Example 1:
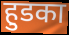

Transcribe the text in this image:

हुडका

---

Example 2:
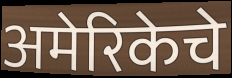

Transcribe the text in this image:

अमेरिकेचे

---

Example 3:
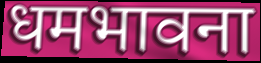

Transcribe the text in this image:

धमभावना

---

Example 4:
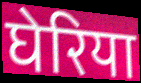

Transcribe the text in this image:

घेरिया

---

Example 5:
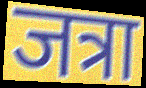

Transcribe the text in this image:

जत्रा